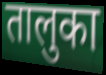
तालुका